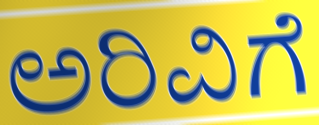
ಅರಿವಿಗೆ